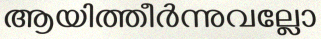
ആയിത്തീർന്നുവല്ലോ